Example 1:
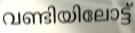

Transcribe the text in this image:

വണ്ടിയിലോട്ട്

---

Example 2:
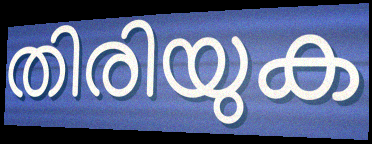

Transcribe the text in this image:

തിരിയുക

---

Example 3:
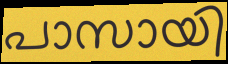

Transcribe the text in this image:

പാസായി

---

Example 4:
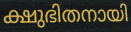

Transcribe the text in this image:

ക്ഷുഭിതനായി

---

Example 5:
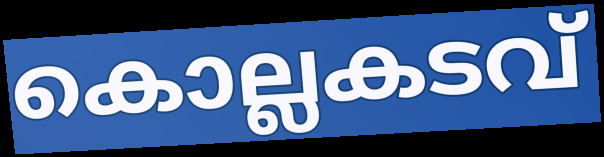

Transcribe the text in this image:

കൊല്ലകടവ്